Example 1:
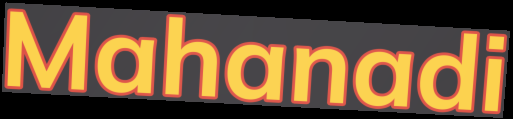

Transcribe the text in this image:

Mahanadi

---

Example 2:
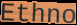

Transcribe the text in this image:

Ethno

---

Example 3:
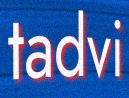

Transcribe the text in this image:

tadvi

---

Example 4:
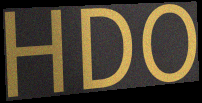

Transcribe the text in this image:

HDO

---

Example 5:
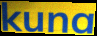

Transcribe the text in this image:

kuna